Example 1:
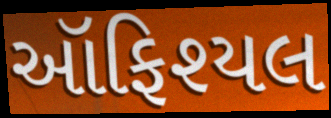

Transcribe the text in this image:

ઑફિશ્યલ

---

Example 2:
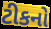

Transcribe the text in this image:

ટીકનો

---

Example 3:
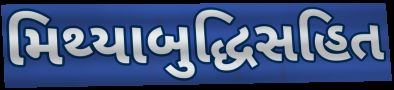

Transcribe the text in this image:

મિથ્યાબુદ્ધિસહિત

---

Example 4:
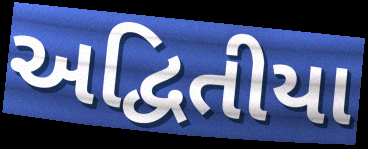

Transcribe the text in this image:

અદ્વિતીયા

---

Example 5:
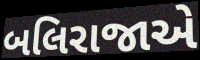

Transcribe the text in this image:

બલિરાજાએ